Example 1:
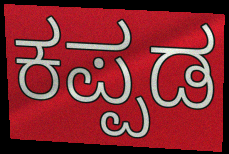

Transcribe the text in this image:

ಕಪ್ಪಡ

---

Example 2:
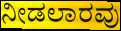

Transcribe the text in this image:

ನೀಡಲಾರವು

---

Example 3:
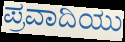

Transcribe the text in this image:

ಪ್ರವಾದಿಯು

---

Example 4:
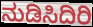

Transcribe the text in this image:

ನುಡಿಸಿದಿರಿ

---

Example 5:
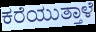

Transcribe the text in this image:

ಕರೆಯುತ್ತಾಳೆ